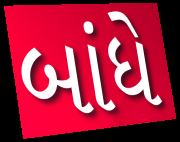
બાંધે